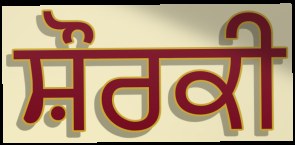
ਸ਼ੌਰਕੀ